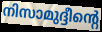
നിസാമുദ്ദീന്റെ